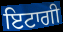
ਇਟਾਗੀ